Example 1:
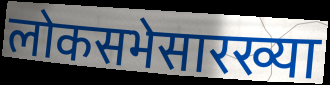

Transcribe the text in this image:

लोकसभेसारख्या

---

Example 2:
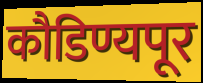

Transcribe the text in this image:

कौडिण्यपूर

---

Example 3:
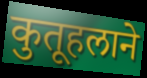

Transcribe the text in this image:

कुतूहलाने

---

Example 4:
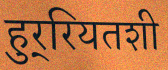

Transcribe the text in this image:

हुर्रियतशी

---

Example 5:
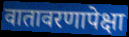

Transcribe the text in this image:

वातावरणापेक्षा